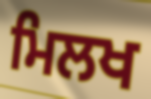
ਮਿਲਖ